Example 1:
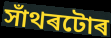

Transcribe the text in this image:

সাঁথৰটোৰ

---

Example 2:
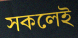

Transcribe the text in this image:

সকলেই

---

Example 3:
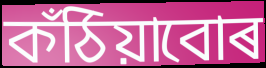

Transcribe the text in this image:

কঁঠিয়াবোৰ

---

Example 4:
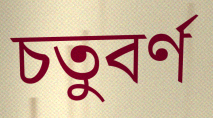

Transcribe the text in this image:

চতুবৰ্ণ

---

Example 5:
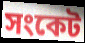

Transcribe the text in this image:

সংকেট